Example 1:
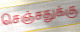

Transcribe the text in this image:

செஞ்சதுக்கு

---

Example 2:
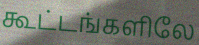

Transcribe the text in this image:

கூட்டங்களிலே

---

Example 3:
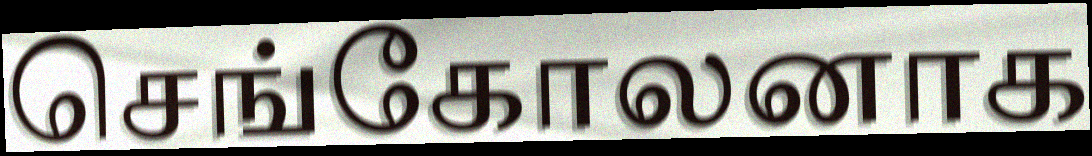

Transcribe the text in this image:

செங்கோலனாக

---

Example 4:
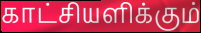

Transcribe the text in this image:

காட்சியளிக்கும்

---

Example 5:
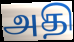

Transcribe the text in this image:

அதி